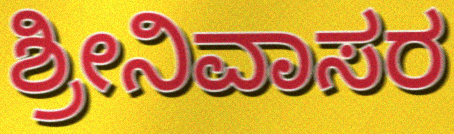
ಶ್ರೀನಿವಾಸರ